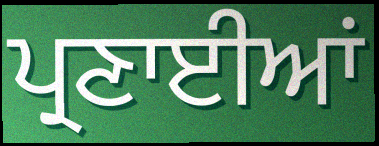
ਪ੍ਰਣਾਈਆਂ